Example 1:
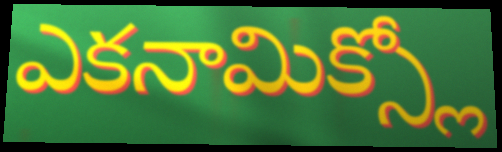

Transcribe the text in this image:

ఎకనామిక్స్లో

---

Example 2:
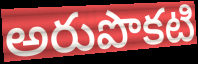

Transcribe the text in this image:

అరుపొకటి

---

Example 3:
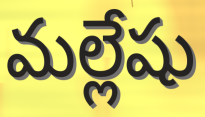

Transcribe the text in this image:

మల్లేషు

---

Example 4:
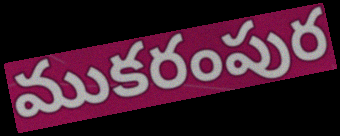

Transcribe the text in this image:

ముకరంపుర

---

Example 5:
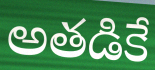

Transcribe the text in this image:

అతడికే